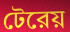
টেরেয়